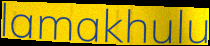
lamakhulu